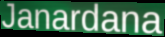
Janardana